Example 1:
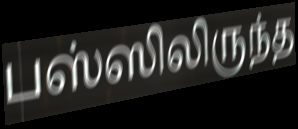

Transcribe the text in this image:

பஸ்ஸிலிருந்த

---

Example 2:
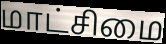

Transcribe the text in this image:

மாட்சிமை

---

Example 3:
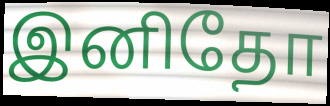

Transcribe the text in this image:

இனிதோ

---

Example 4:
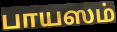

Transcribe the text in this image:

பாயஸம்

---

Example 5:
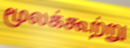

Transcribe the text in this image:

மூலக்கூற்று